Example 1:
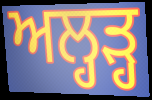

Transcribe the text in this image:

ਅਲ੍ਹੜ੍ਹ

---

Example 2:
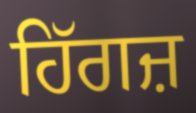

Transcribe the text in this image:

ਹਿੱਗਜ਼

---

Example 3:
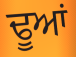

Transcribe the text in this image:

ਢੂਆਂ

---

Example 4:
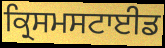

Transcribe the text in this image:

ਕ੍ਰਿਸਮਸਟਾਈਡ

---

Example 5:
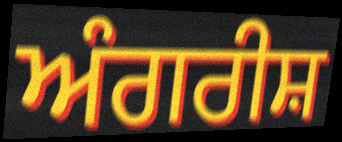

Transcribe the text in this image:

ਅੰਗਰੀਸ਼